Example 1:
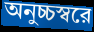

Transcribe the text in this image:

অনুচ্চস্বরে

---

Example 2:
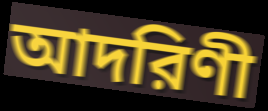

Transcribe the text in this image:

আদরিণী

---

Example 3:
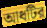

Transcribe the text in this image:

আধটির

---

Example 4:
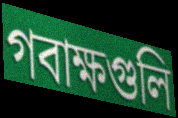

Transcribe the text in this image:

গবাক্ষগুলি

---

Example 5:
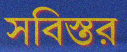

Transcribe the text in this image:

সবিস্তর